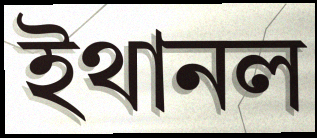
ইথানল